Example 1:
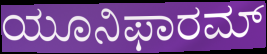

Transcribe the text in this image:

ಯೂನಿಫಾರಮ್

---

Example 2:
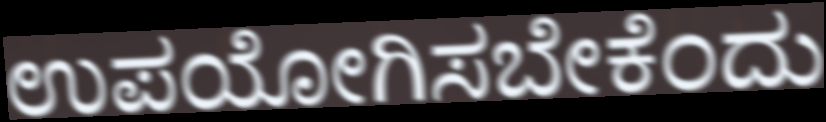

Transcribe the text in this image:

ಉಪಯೋಗಿಸಬೇಕೆಂದು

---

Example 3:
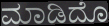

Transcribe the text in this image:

ಮಾಡಿದೊ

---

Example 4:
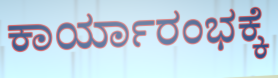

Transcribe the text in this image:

ಕಾರ್ಯಾರಂಭಕ್ಕೆ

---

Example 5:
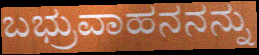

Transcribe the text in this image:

ಬಭ್ರುವಾಹನನನ್ನು